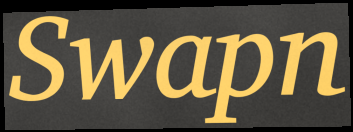
Swapn